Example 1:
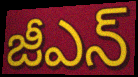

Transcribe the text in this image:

జీఎన్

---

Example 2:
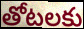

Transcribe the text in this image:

తోటలకు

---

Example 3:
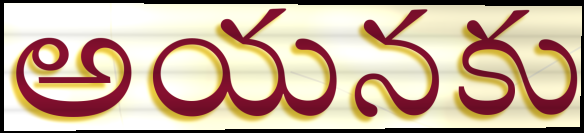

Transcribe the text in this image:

అయనకు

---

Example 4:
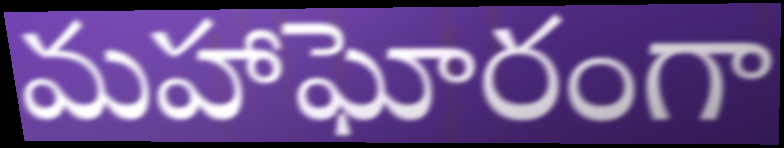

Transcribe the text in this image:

మహాఘోరంగా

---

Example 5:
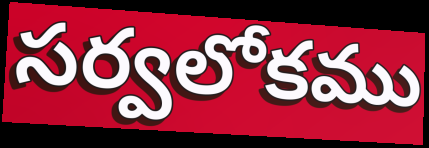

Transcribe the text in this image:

సర్వలోకము